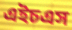
এইচএস